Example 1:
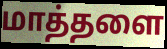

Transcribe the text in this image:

மாத்தளை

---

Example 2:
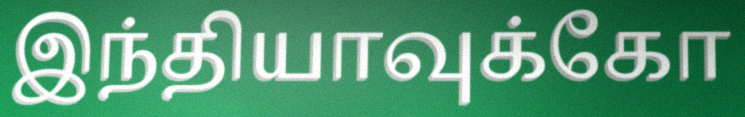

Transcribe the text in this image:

இந்தியாவுக்கோ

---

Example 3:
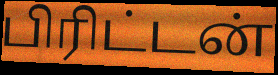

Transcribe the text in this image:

பிரிட்டன்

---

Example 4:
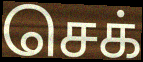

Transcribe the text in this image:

செக்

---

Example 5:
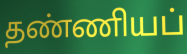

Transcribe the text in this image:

தண்ணியப்